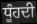
ਧੂੰਹਦੀ